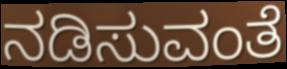
ನಡಿಸುವಂತೆ